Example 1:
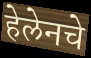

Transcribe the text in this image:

हेलेनचे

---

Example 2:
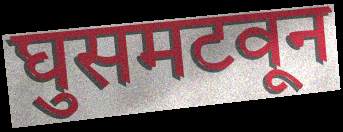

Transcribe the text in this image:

घुसमटवून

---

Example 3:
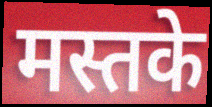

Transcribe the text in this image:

मस्तके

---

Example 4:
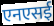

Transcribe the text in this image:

एनएसई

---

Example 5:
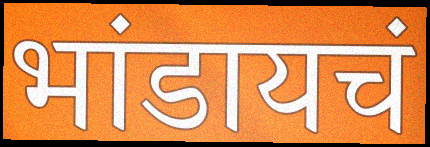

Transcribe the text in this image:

भांडायचं